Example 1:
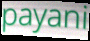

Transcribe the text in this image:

payani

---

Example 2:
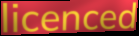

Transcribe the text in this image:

licenced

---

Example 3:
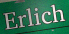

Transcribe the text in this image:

Erlich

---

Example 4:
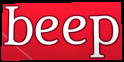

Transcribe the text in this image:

beep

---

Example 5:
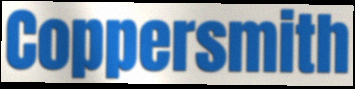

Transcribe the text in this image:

Coppersmith